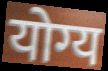
योग्य